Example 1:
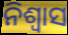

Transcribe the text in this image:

ନିଶ୍ଵାସ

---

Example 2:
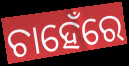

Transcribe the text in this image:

ଚାହେଁରେ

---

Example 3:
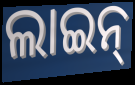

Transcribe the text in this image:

ଲାଇନ୍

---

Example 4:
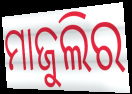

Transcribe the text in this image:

ମାଜୁଲିର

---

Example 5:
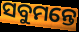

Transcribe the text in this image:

ସବୁମନ୍ତେ